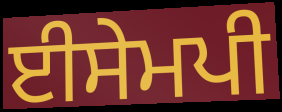
ਈਸੇਮਪੀ